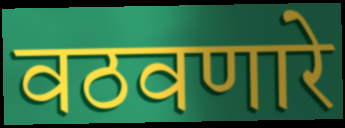
वठवणारे